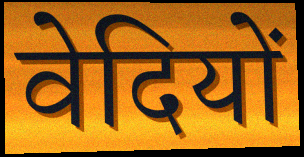
वेदियों